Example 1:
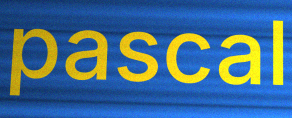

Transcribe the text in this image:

pascal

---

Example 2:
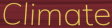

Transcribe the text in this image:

Climate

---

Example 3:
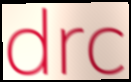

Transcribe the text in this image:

drc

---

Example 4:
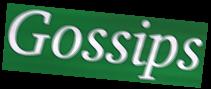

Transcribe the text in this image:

Gossips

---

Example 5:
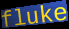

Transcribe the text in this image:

fluke